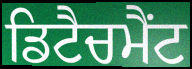
ਡਿਟੈਚਮੈਂਟ